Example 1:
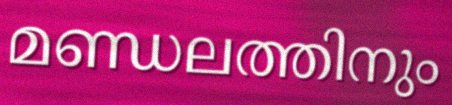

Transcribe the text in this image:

മണ്ഡലത്തിനും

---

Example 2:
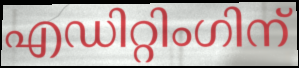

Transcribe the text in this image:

എഡിറ്റിംഗിന്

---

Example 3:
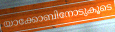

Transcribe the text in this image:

യാക്കോബിനോടുകൂടെ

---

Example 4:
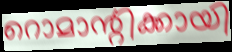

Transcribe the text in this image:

റൊമാന്റിക്കായി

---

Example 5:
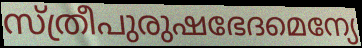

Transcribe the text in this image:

സ്ത്രീപുരുഷഭേദമെന്യേ